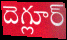
దెగ్లూర్